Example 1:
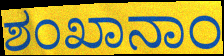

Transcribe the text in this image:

ಶಂಖಾನಾಂ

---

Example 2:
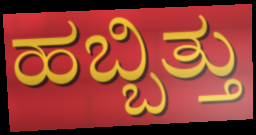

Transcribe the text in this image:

ಹಬ್ಬಿತ್ತು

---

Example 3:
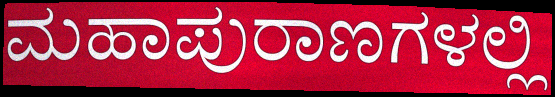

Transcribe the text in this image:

ಮಹಾಪುರಾಣಗಳಲ್ಲಿ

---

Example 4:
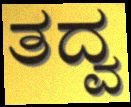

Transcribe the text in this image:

ತದ್ವ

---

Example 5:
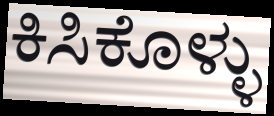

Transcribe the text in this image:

ಕಿಸಿಕೊಳ್ಳು